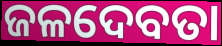
ଜଳଦେବତା